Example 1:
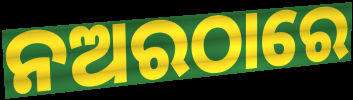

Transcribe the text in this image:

ନଅରଠାରେ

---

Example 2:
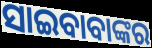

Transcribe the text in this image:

ସାଇବାବାଙ୍କର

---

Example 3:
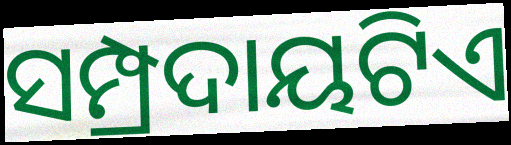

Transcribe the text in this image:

ସମ୍ପ୍ରଦାୟଟିଏ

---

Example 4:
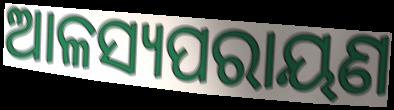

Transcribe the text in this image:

ଆଳସ୍ୟପରାୟଣ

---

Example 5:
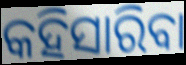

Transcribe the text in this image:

କହିସାରିବା